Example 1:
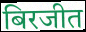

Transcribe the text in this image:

बिरजीत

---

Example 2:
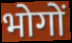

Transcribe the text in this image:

भोगों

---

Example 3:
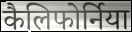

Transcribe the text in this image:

कैलिफोर्निया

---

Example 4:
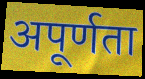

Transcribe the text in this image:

अपूर्णता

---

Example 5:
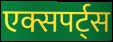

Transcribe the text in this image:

एक्सपर्ट्स